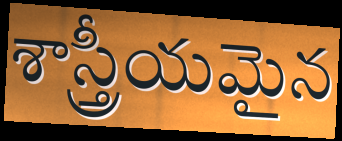
శాస్త్రీయమైన